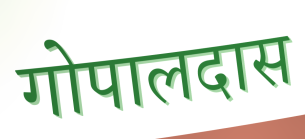
गोपालदास